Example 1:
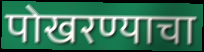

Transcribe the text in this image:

पोखरण्याचा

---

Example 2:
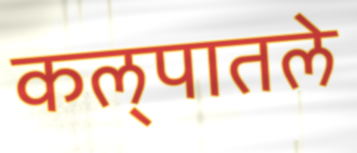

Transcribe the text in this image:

कल्पातले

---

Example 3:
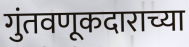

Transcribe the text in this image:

गुंतवणूकदाराच्या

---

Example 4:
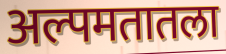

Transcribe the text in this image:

अल्पमतातला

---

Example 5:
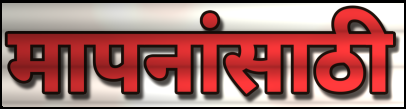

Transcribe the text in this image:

मापनांसाठी